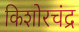
किशोरचंद्र